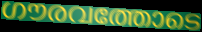
ഗൗരവത്തോടെ